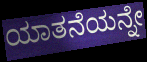
ಯಾತನೆಯನ್ನೇ